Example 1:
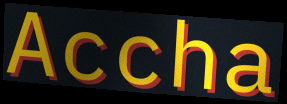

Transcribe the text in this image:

Accha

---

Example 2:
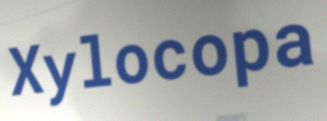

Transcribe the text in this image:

Xylocopa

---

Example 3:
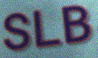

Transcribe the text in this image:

SLB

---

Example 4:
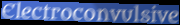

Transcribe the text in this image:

Electroconvulsive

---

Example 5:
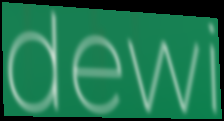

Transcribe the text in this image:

dewi